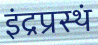
इंद्रप्रस्थं